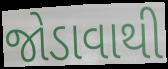
જોડાવાથી